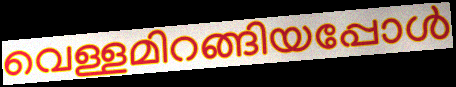
വെള്ളമിറങ്ങിയപ്പോൾ